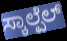
ಸ್ಕಾಲ್ಪೆಲ್